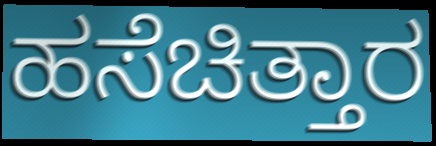
ಹಸೆಚಿತ್ತಾರ